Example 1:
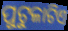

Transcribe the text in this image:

ପୁଟୁଳାଟିଏ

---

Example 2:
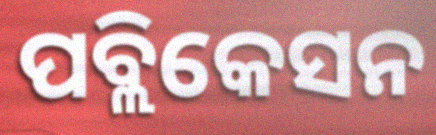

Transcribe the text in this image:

ପବ୍ଲିକେସନ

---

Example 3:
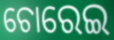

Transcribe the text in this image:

ଚୋରେଇ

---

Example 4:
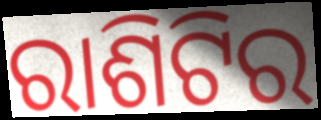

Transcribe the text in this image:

ରାଶିଟିର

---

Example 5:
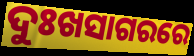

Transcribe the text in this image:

ଦୁଃଖସାଗରରେ